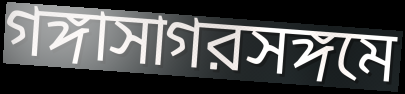
গঙ্গাসাগরসঙ্গমে